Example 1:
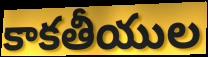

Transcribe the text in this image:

కాకతీయుల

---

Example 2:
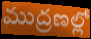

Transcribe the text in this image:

ముద్రణల్లో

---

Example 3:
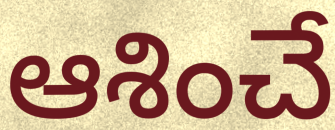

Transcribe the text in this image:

ఆశించే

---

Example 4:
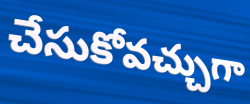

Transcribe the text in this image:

చేసుకోవచ్చుగా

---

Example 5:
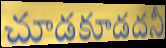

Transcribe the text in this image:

చూడకూడదనీ